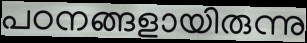
പഠനങ്ങളായിരുന്നു